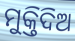
ମୁକ୍ତିଦିଅ